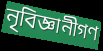
নৃবিজ্ঞানীগণ